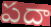
పదా